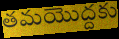
తమయొద్దకు